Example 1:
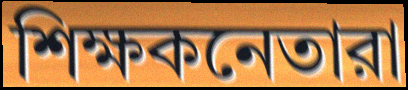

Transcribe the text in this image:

শিক্ষকনেতারা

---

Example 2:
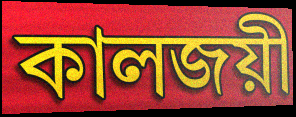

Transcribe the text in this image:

কালজয়ী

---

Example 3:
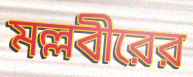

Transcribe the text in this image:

মল্লবীরের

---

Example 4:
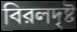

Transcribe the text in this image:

বিরলদৃষ্ট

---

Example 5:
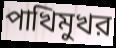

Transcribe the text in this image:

পাখিমুখর